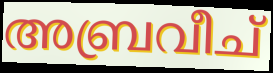
അബ്രവീച്